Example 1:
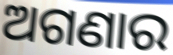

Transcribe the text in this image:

ଅଗଣାର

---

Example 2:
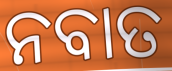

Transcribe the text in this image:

ନବାତ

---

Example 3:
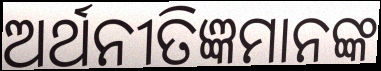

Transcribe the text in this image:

ଅର୍ଥନୀତିଜ୍ଞମାନଙ୍କ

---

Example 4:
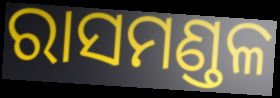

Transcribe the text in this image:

ରାସମଣ୍ଡଳ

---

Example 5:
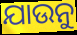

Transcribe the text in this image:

ଯାଉନୁ